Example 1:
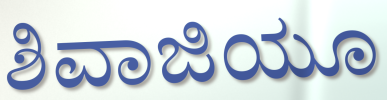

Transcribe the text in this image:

ಶಿವಾಜಿಯೂ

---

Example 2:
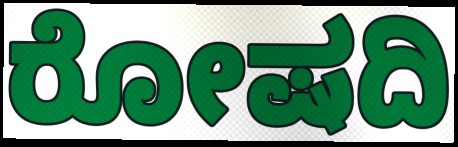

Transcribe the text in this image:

ರೋಷದಿ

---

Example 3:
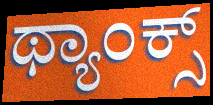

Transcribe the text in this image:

ಥ್ಯಾಂಕ್ಸ್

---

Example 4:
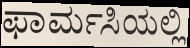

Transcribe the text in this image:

ಫಾರ್ಮಸಿಯಲ್ಲಿ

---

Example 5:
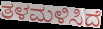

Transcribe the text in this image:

ತಳಮಳಿಸಿದೆ